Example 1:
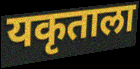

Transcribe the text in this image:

यकृताला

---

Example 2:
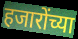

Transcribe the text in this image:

हजारोंच्या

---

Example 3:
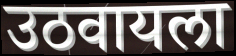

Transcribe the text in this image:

उठवायला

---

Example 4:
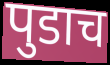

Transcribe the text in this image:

पुडाच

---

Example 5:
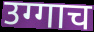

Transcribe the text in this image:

उग्गाच